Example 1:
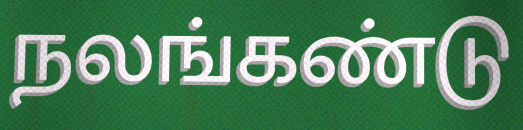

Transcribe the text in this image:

நலங்கண்டு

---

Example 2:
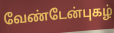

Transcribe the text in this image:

வேண்டேன்புகழ்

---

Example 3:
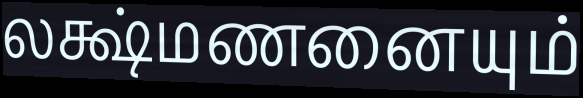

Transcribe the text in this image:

லக்ஷ்மணனையும்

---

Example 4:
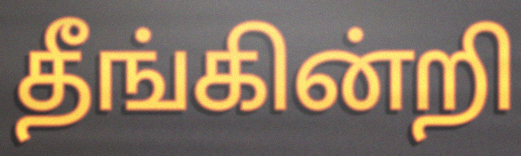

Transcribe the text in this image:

தீங்கின்றி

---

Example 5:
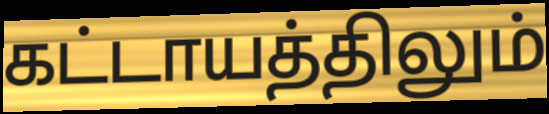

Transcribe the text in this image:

கட்டாயத்திலும்